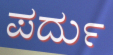
ಪರ್ದು